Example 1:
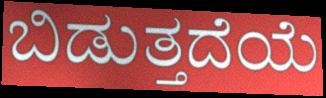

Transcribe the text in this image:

ಬಿಡುತ್ತದೆಯೆ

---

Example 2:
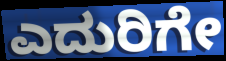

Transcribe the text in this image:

ಎದುರಿಗೇ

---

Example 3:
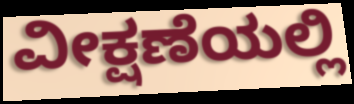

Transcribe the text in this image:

ವೀಕ್ಷಣೆಯಲ್ಲಿ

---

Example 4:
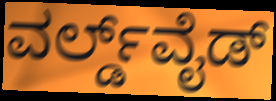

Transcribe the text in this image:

ವರ್ಲ್ಡ್‌ವೈಡ್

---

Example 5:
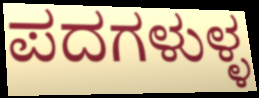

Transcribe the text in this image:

ಪದಗಳುಳ್ಳ